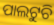
ପାଲଟୁଚି